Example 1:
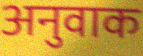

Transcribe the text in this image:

अनुवाक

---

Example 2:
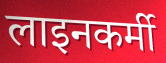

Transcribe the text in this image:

लाइनकर्मी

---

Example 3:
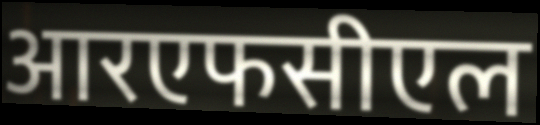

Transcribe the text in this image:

आरएफसीएल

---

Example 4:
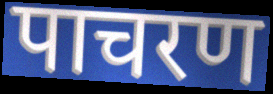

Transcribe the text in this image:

पाचरण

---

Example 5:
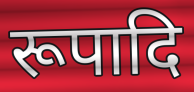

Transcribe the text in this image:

रूपादि